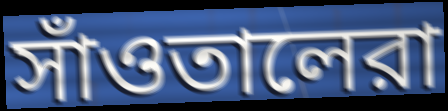
সাঁওতালেরা